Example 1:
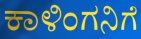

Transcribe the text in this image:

ಕಾಳಿಂಗನಿಗೆ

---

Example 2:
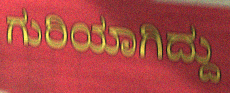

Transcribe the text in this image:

ಗುರಿಯಾಗಿದ್ದು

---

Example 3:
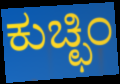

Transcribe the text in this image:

ಕುಚ್ಛಿಂ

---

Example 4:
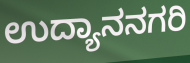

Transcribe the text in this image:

ಉದ್ಯಾನನಗರಿ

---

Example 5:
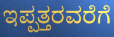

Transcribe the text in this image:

ಇಪ್ಪತ್ತರವರೆಗೆ